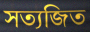
সত্যজিত